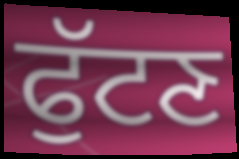
ਫੁੱਟਣ